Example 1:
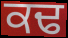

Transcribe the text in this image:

ਕਢ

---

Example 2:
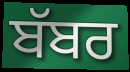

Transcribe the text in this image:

ਬੱਬਰ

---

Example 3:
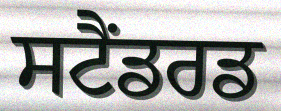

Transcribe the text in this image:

ਸਟੈਂਡਰਡ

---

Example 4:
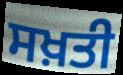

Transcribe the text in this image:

ਸਖ਼ਤੀ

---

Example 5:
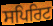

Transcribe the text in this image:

ਸਪਿਰਿਟ